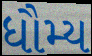
ધૌમ્ય